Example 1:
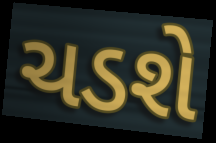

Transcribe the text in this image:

ચડશે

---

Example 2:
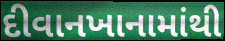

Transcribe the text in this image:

દીવાનખાનામાંથી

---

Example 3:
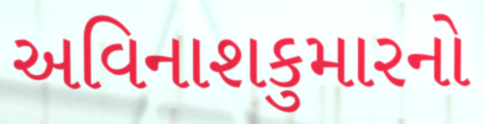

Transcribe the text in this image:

અવિનાશકુમારનો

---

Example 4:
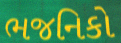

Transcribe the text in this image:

ભજનિકો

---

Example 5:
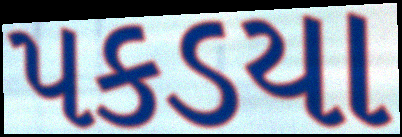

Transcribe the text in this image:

પકડયા